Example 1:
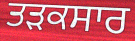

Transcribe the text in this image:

ਤੜਕਸਾਰ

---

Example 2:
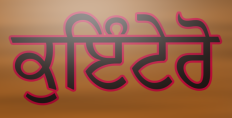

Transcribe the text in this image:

ਕੁਇੰਟੇਰੋ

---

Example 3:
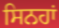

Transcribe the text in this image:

ਸਿਨਹਾਂ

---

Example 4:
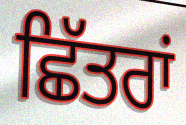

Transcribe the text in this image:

ਛਿੱਤਰਾਂ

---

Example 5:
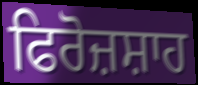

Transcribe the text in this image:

ਫਿਰੋਜ਼ਸ਼ਾਹ